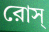
রোস্